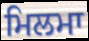
ਮਿਲਮਾ